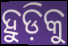
ହୁଡ଼ିକୁ